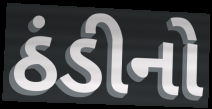
ઠંડીનો